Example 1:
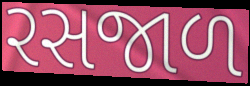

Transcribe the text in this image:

રસજાળ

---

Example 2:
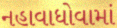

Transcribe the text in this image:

નહાવાધોવામાં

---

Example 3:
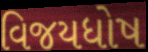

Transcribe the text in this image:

વિજયધોષ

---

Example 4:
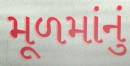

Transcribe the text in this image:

મૂળમાંનું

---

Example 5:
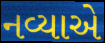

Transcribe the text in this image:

નવ્યાએ